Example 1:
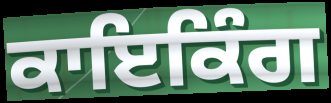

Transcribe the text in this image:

ਕਾਇਕਿੰਗ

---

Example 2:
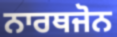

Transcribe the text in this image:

ਨਾਰਥਜੋਨ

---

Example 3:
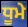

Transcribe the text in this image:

ਧੂਮੇ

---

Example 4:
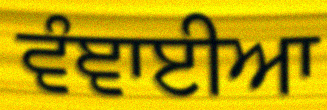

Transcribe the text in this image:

ਵੰਞਾਈਆ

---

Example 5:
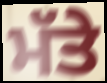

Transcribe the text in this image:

ਮੱਤੇ